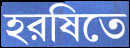
হরষিতে